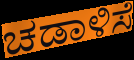
ಚಡಾಳಿಸೆ